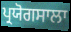
ਪ੍ਰਯੋਗਸਾਲਾ